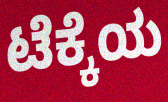
ಟೆಕ್ಕೆಯ